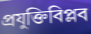
প্রযুক্তিবিপ্লব